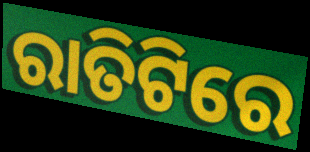
ରାତିଟିରେ